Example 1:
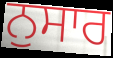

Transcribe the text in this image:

ਨੁਸਾਰ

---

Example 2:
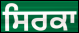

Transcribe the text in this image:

ਸਿਰਕਾ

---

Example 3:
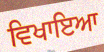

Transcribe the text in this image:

ਵਿਖਾਇਆ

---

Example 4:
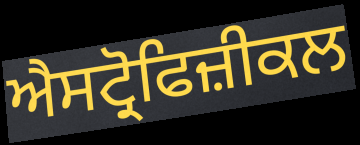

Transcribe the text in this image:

ਐਸਟ੍ਰੋਫਿਜ਼ੀਕਲ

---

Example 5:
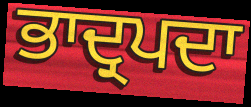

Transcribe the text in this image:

ਭਾਦ੍ਰਪਦਾ